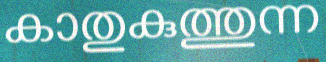
കാതുകുത്തുന്ന